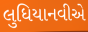
લુધિયાનવીએ